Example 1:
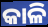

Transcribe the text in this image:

କାଳି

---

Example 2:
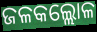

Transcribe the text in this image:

ଜଳକଲ୍ଲୋଳ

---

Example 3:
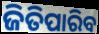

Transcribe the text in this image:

ଜିତିପାରିବ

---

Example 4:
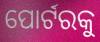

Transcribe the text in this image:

ପୋର୍ଟରକୁ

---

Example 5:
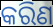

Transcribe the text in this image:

କରିଣ